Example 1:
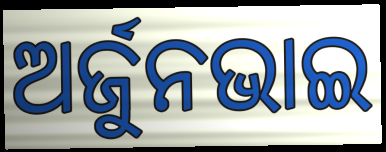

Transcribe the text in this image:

ଅର୍ଜୁନଭାଇ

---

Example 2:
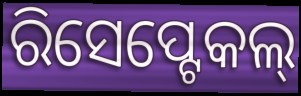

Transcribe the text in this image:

ରିସେପ୍ଟେକଲ୍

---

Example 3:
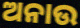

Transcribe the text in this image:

ଅନାଉ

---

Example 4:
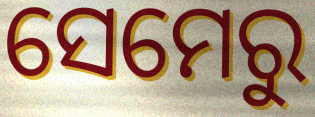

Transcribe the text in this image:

ସେମେରୁ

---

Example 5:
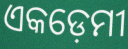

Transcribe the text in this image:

ଏକଡ଼େମୀ